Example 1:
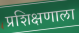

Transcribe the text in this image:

प्रशिक्षणाला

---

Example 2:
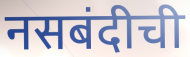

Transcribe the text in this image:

नसबंदीची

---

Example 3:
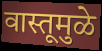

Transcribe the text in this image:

वास्तूमुळे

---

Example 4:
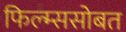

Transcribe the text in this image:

फिल्म्ससोबत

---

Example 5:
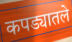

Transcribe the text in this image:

कपड्यातले